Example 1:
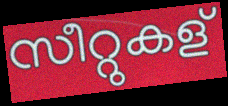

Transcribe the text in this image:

സീറ്റുകള്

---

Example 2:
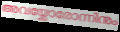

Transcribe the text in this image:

അവയ്ക്കോരോന്നിനും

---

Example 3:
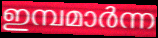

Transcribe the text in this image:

ഇമ്പമാർന്ന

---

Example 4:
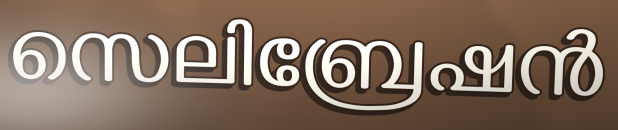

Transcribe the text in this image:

സെലിബ്രേഷൻ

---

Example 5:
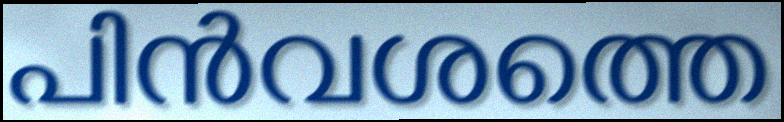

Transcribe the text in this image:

പിൻവശത്തെ